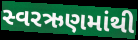
સ્વરઋણમાંથી